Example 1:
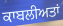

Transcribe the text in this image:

ਕਾਬਲੀਅਤਾਂ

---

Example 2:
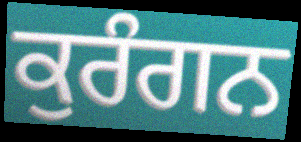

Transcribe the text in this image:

ਕੁਰੰਗਨ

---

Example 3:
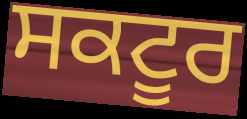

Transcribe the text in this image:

ਸਕਟੂਰ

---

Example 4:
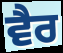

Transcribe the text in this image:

ਵੈਰ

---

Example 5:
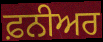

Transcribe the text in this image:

ਫ਼ਨੀਅਰ